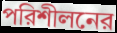
পরিশীলনের